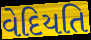
વેદિયતિ